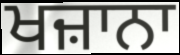
ਖਜ਼ਾਨਾ